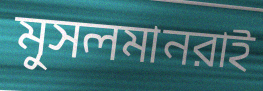
মুসলমানরাই